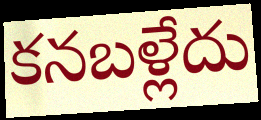
కనబళ్లేదు